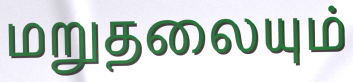
மறுதலையும்